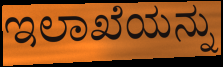
ಇಲಾಖೆಯನ್ನು